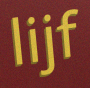
lijf